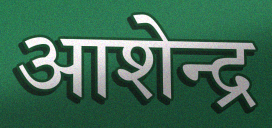
आशेन्द्र